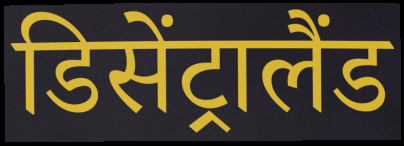
डिसेंट्रालैंड